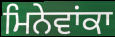
ਮਿਨੇਵਾਂਕਾ